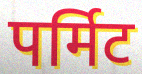
पर्मिट